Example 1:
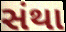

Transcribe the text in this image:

સંથા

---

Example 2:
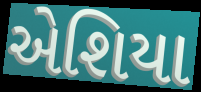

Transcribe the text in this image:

એશિયા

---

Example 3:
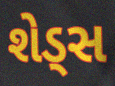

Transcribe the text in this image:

શેડ્સ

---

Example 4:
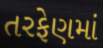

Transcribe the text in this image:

તરફેણમાં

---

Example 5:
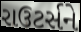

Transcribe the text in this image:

રાઉટર્સને